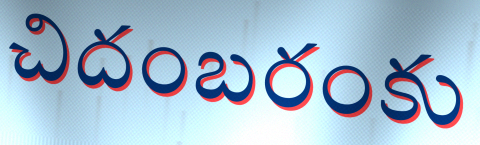
చిదంబరంకు